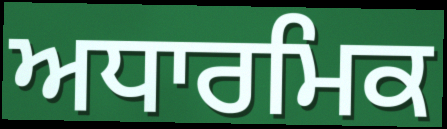
ਅਧਾਰਮਿਕ